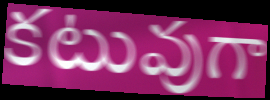
కటువుగా